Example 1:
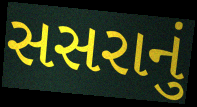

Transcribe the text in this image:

સસરાનું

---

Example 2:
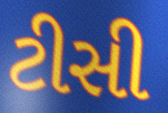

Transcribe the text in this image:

ટીસી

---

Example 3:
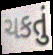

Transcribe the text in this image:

ચકતું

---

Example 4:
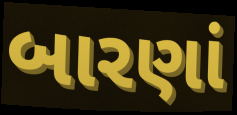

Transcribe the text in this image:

બારણાં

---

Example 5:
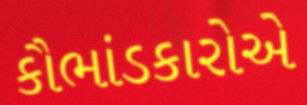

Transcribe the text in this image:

કૌભાંડકારોએ